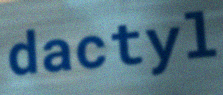
dactyl